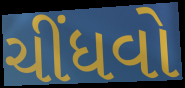
ચીંધવો